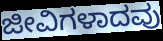
ಜೀವಿಗಳಾದವು